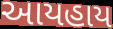
આયહાય